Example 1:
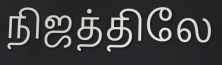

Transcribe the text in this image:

நிஜத்திலே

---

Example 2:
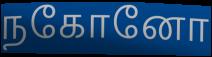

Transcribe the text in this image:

நகோனோ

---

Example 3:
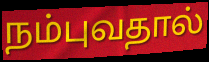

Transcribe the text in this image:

நம்புவதால்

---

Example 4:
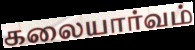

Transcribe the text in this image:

கலையார்வம்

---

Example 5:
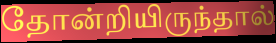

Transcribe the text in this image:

தோன்றியிருந்தால்